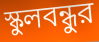
স্কুলবন্ধুর